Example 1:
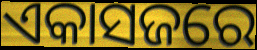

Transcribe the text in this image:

ଏକାସଜରେ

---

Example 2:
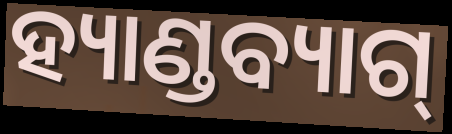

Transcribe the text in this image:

ହ୍ୟାଣ୍ଡବ୍ୟାଗ୍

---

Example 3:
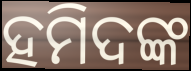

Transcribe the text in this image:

ହମିଦଙ୍କ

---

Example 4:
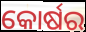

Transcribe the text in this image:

କୋର୍ଷର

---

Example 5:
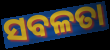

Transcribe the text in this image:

ସବଳତା